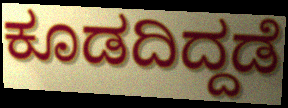
ಕೂಡದಿದ್ದಡೆ